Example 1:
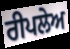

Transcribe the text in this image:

ਰੀਪਲੇਅ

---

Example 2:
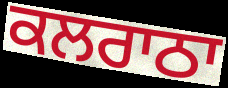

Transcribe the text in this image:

ਕਲਰਾਠਾ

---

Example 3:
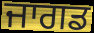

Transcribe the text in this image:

ਜਾਗਡ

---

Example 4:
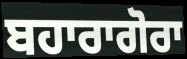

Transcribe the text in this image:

ਬਹਾਰਾਗੋਰਾ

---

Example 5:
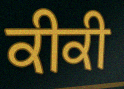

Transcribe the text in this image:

ਕੀਕੀ